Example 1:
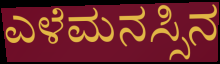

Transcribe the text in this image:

ಎಳೆಮನಸ್ಸಿನ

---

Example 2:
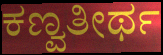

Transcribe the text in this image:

ಕಣ್ವತೀರ್ಥ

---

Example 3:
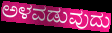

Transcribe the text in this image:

ಅಳವಡುವುದು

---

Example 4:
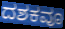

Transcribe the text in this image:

ದಶಕವೂ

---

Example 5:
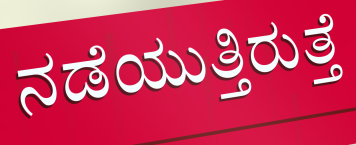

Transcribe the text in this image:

ನಡೆಯುತ್ತಿರುತ್ತೆ